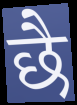
छै